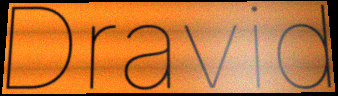
Dravid